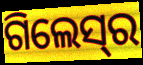
ଗିଲେସ୍‍ର